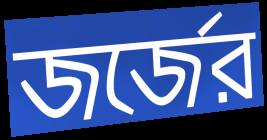
জর্জের